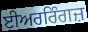
ਈਅਰਰਿੰਗਜ਼